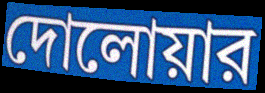
দোলোয়ার